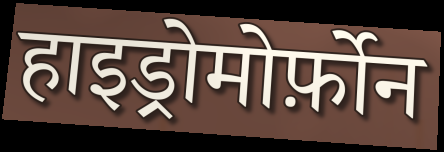
हाइड्रोमोर्फ़ोन